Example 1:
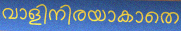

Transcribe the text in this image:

വാളിനിരയാകാതെ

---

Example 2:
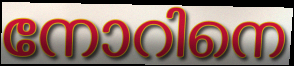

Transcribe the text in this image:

നോറിനെ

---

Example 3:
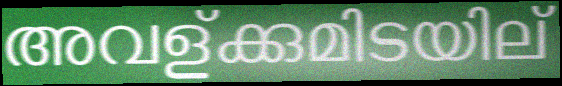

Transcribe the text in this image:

അവള്ക്കുമിടയില്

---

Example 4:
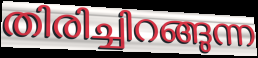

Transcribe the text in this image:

തിരിച്ചിറങ്ങുന്ന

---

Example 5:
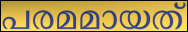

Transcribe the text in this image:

പരമമായത്